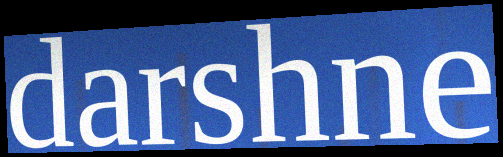
darshne